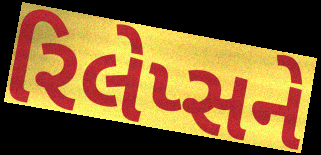
રિલેપ્સને